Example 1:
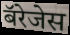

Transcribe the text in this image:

बॅरेजेस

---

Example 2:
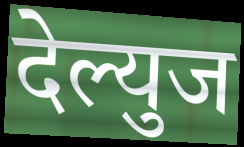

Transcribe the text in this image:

देल्युज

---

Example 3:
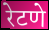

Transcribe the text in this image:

रेटणे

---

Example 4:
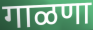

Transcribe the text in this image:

गाळणा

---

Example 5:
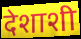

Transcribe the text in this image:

देशाशी